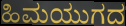
ಹಿಮಯುಗದ